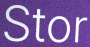
Stor